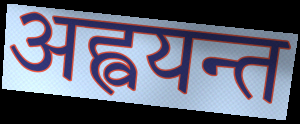
अह्वयन्त